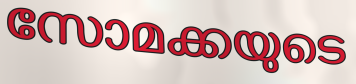
സോമക്കയുടെ